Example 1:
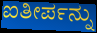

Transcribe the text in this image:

ಐತೀರ್ಪನ್ನು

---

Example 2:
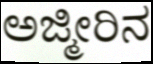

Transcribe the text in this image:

ಅಜ್ಮೀರಿನ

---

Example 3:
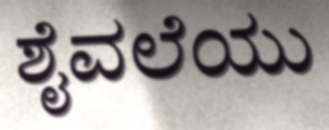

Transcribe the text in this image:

ಶೈವಲೆಯು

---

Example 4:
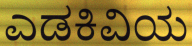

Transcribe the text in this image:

ಎಡಕಿವಿಯ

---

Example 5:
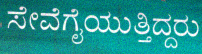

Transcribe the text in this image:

ಸೇವೆಗೈಯುತ್ತಿದ್ದರು